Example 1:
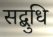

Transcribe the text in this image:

सद्बुधि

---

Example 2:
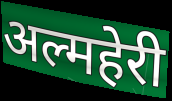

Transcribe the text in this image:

अल्महेरी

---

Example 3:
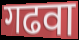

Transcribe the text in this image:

गढवा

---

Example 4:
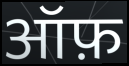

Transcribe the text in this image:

ऑफ़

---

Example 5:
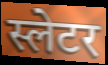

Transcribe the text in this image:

स्लेटर